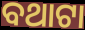
ବଥାଟା